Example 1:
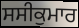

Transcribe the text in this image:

ਸਸੀਕੁਮਾਰ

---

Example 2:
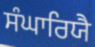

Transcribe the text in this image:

ਸੰਘਾਰਿਯੈ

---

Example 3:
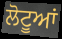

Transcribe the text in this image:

ਲੋਟੂਆਂ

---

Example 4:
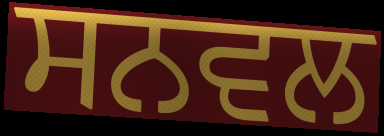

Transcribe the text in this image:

ਸਨਵਲ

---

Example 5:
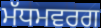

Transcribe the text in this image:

ਮੱਧਮਵਰਗ